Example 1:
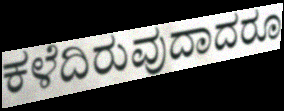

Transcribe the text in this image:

ಕಳೆದಿರುವುದಾದರೂ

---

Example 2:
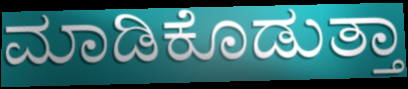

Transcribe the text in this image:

ಮಾಡಿಕೊಡುತ್ತಾ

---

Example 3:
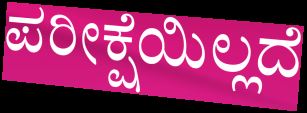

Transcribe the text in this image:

ಪರೀಕ್ಷೆಯಿಲ್ಲದೆ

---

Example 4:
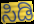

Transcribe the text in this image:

ಸಿಡಿ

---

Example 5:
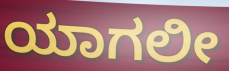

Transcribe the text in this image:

ಯಾಗಲೀ